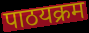
पाठयक्रम